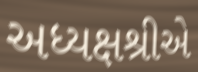
અધ્યક્ષશ્રીએ